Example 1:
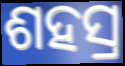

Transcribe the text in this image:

ଶହସ୍ର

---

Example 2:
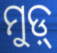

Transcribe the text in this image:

ମୁଡ଼୍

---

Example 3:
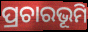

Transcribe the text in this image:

ପ୍ରଚାରଭୂମି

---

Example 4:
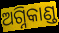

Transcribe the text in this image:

ଅଗ୍ନିକାଣ୍ଡ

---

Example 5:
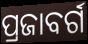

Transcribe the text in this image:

ପ୍ରଜାବର୍ଗ